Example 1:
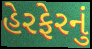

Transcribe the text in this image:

હેરફેરનું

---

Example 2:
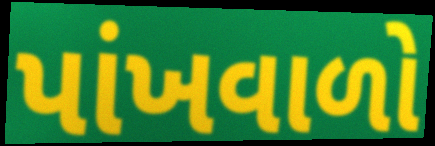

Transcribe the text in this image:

પાંખવાળો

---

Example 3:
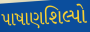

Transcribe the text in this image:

પાષાણશિલ્પો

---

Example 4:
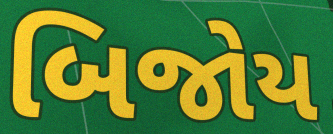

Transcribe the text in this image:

બિજોય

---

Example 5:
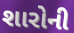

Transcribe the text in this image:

શારોની